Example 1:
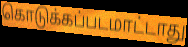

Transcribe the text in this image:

கொடுக்கப்படமாட்டாது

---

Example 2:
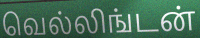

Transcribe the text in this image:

வெல்லிங்டன்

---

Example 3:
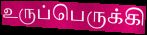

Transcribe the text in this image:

உருப்பெருக்கி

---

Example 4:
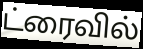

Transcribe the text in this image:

ட்ரைவில்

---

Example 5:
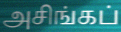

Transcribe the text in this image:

அசிங்கப்